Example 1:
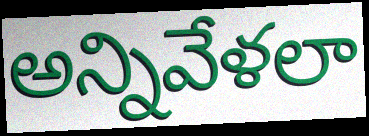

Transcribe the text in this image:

అన్నివేళలా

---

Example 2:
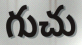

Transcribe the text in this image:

గుచు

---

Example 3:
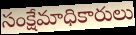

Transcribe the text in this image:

సంక్షేమాధికారులు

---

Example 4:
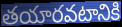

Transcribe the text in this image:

తయారవటానికి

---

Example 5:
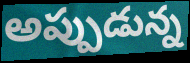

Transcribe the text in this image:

అప్పుడున్న